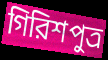
গিরিশপুত্র